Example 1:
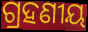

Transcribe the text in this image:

ଗ୍ରହଣୀୟ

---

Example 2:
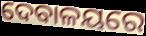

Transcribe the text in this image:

ଦେବାଳୟରେ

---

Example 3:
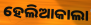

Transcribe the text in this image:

ହେଲିଆକାଲା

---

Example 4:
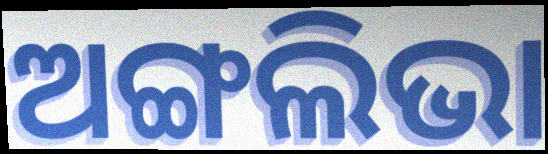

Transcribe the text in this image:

ଅଙ୍ଗଲିଭା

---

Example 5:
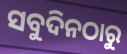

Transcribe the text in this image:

ସବୁଦିନଠାରୁ